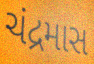
ચંદ્રમાસ